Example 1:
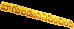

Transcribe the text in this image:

బాగుండుననిపించింది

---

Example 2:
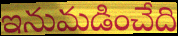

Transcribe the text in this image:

ఇనుమడించేది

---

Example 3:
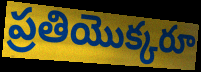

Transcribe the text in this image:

ప్రతియొక్కరూ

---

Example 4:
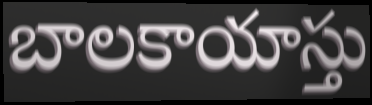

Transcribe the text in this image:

బాలకాయాస్తు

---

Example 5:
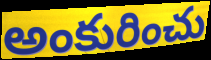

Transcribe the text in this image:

అంకురించు